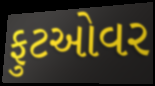
ફુટઓવર